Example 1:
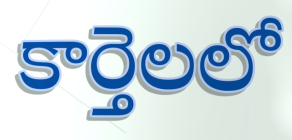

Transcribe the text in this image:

కార్తెలలో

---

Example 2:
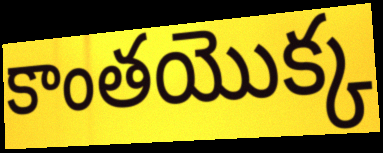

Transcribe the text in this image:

కాంతయొక్క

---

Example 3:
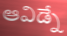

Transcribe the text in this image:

ఆవిడ్నే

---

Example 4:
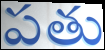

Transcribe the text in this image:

పతు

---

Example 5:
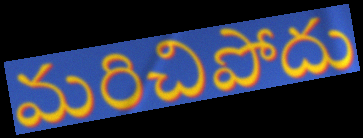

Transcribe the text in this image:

మరిచిపోదు